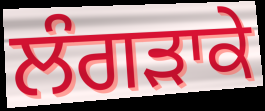
ਲੰਗੜਾਕੇ